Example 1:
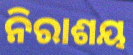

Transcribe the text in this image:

ନିରାଶୟ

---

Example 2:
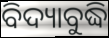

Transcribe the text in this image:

ବିଦ୍ୟାବୁଦ୍ଧି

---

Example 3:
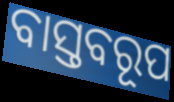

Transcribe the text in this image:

ବାସ୍ତବରୂପ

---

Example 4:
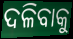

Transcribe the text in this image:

ଦଳିବାକୁ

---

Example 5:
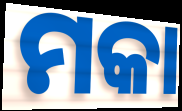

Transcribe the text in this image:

ମକା